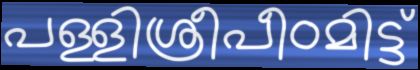
പള്ളിശ്രീപീഠമിട്ട്